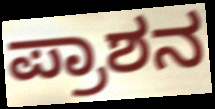
ಪ್ರಾಶನ